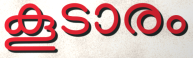
കൂടാരം